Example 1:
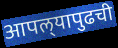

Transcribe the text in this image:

आपल्यापुढची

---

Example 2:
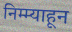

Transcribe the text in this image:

निम्म्याहून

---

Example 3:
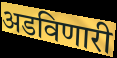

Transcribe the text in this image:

अडविणारी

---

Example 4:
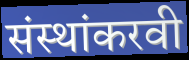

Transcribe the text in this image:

संस्थांकरवी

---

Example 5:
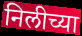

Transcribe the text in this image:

निलीच्या